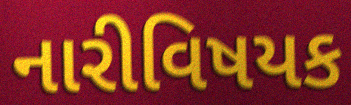
નારીવિષયક